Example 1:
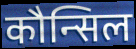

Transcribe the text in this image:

कौन्सिल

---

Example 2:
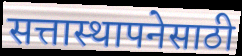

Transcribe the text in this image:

सत्तास्थापनेसाठी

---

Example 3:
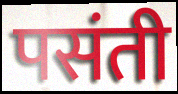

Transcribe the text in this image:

पसंती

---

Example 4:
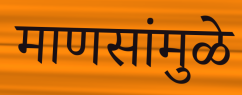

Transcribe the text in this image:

माणसांमुळे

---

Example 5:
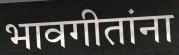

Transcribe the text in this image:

भावगीतांना